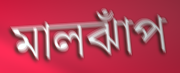
মালঝাঁপ